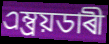
এম্ব্ৰয়ডাৰী